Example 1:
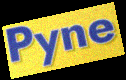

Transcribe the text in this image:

Pyne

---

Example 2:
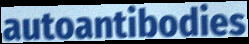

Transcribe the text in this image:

autoantibodies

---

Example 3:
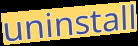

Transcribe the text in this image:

uninstall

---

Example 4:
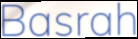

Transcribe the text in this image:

Basrah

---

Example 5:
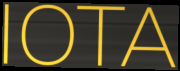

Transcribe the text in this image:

IOTA